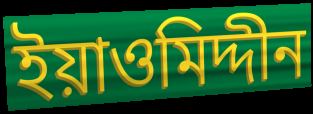
ইয়াওমিদ্দীন